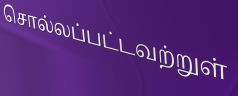
சொல்லப்பட்டவற்றுள்